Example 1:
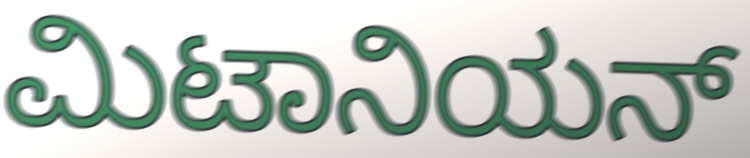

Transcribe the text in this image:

ಮಿಟಾನಿಯನ್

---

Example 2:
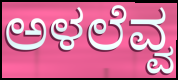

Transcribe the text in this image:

ಅಳಲೆವ್ವ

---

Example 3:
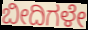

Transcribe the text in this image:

ಬೀದಿಗಳೇ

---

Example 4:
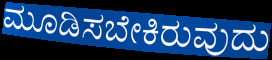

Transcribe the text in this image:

ಮೂಡಿಸಬೇಕಿರುವುದು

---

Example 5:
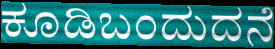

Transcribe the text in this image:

ಕೂಡಿಬಂದುದನೆ